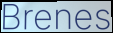
Brenes